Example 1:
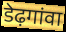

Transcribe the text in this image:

डेढ़गांवा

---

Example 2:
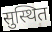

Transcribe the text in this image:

सुस्थित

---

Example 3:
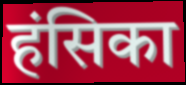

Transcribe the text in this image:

हंसिका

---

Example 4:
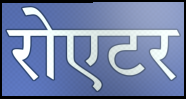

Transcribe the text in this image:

रोएटर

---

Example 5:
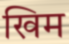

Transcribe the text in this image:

खिम